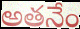
అతనేం